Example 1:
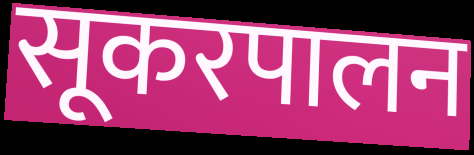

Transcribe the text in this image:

सूकरपालन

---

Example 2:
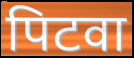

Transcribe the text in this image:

पिटवा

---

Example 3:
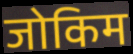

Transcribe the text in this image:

जोकिम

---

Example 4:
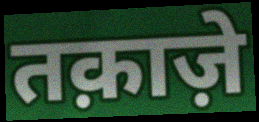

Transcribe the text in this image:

तक़ाज़े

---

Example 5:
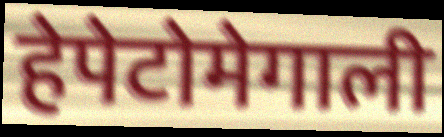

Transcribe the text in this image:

हेपेटोमेगाली